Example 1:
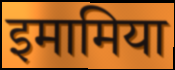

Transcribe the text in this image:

इमामिया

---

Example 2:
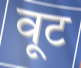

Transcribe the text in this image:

वूट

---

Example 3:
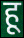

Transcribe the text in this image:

हू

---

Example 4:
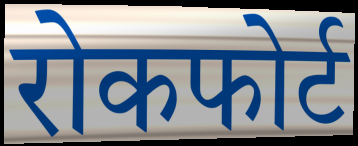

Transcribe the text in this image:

रोकफोर्ट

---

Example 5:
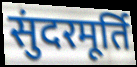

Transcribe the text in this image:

सुंदरमूर्ति